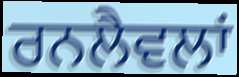
ਰਨਲੈਵਲਾਂ